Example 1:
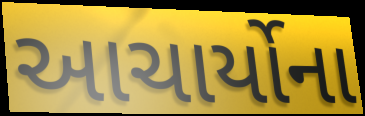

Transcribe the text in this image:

આચાર્યોના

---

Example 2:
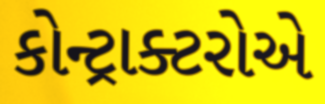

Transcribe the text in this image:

કોન્ટ્રાક્ટરોએ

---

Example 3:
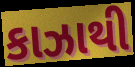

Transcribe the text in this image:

કાઝાથી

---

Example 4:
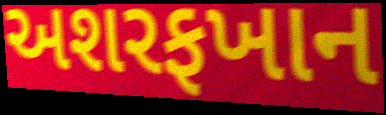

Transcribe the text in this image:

અશરફખાન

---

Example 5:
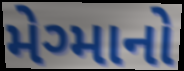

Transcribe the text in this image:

મેગ્માનો